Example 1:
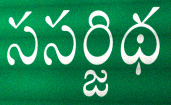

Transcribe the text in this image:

ససర్జిథ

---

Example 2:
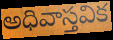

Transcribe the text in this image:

అధివాస్తవిక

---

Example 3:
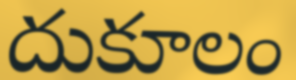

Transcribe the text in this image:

దుకూలం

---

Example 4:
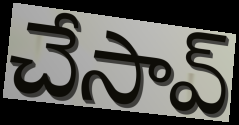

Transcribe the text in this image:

చేసావ్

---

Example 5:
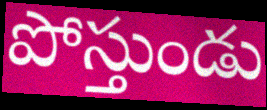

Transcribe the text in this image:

పోస్తుండు